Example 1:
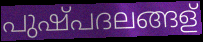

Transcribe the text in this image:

പുഷ്പദലങ്ങള്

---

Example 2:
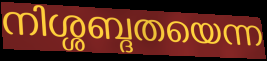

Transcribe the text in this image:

നിശ്ശബ്ദതയെന്ന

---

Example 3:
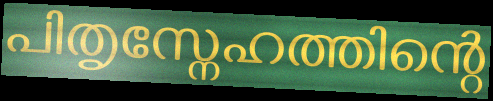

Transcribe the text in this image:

പിതൃസ്നേഹത്തിന്റെ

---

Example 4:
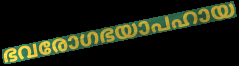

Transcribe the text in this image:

ഭവരോഗഭയാപഹായ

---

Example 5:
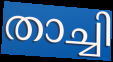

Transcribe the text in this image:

താച്ചി